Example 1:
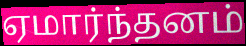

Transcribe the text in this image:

ஏமார்ந்தனம்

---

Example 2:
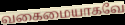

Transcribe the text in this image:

வகைமையாகவே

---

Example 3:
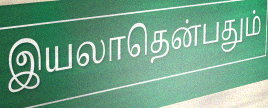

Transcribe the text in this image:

இயலாதென்பதும்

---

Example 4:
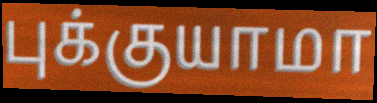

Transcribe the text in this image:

புக்குயாமா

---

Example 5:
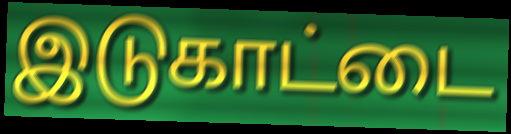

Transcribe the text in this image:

இடுகாட்டை